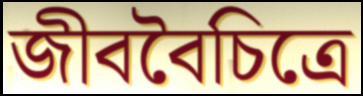
জীববৈচিত্রে